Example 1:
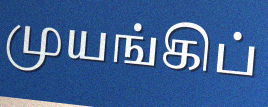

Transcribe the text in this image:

முயங்கிப்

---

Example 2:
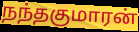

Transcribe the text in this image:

நந்தகுமாரன்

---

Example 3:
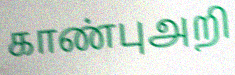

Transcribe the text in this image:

காண்புஅறி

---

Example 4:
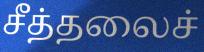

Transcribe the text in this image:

சீத்தலைச்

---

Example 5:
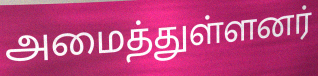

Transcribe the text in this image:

அமைத்துள்ளனர்